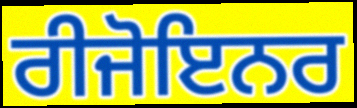
ਰੀਜੋਇਨਰ